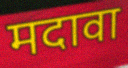
मदावा